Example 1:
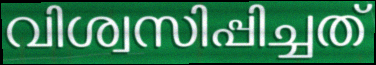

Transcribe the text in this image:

വിശ്വസിപ്പിച്ചത്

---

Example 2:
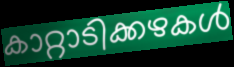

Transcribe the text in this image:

കാറ്റാടിക്കഴകൾ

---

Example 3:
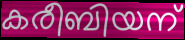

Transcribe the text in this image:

കരീബിയന്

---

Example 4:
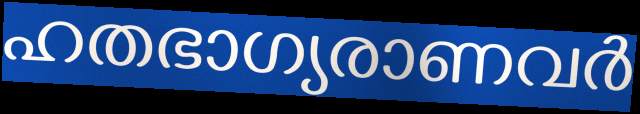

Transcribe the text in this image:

ഹതഭാഗ്യരാണവർ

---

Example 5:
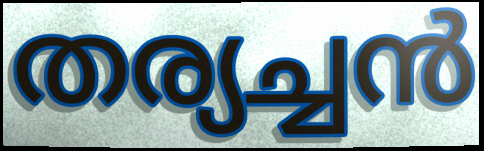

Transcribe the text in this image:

തര്യച്ചൻ